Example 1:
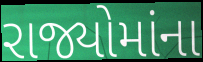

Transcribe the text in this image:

રાજ્યોમાંના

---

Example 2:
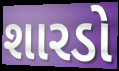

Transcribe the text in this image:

શારડો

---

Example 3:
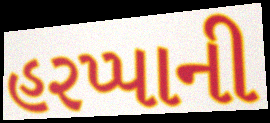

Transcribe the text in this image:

હરપ્પાની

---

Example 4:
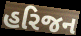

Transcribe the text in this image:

હરિજન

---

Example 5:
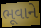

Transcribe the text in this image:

ભૂવાને